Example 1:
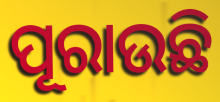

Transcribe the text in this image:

ପୂରାଉଛି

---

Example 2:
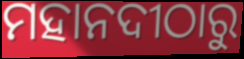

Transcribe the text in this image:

ମହାନଦୀଠାରୁ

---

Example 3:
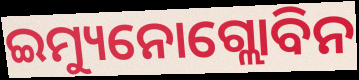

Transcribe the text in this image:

ଇମ୍ୟୁନୋଗ୍ଲୋବିନ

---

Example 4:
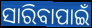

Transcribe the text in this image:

ସାରିବାପାଇଁ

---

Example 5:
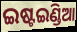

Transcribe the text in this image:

ଇଷ୍ଟଇଣ୍ଡିଆ